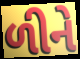
ળીને